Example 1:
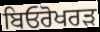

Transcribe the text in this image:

ਬਿਓਰੋਖਰੜ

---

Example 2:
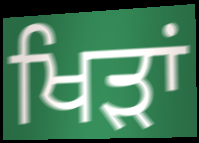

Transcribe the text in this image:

ਖਿੜਾਂ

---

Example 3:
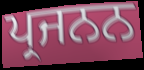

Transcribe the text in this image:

ਪ੍ਰਜਨਨ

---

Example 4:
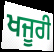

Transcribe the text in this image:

ਖਜੂਰੀ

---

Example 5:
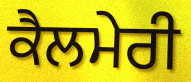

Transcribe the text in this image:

ਕੈਲਮੇਰੀ